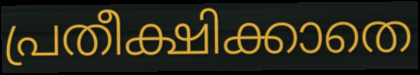
പ്രതീക്ഷിക്കാതെ